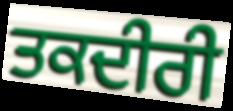
ਤਕਦੀਰੀ